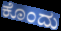
ಕೊಂದು